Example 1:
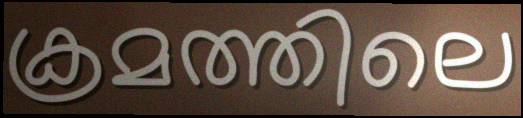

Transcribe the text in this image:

ക്രമത്തിലെ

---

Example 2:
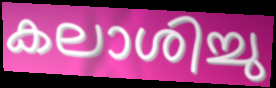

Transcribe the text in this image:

കലാശിച്ചു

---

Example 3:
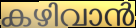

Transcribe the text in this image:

കഴിവാൻ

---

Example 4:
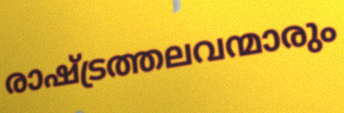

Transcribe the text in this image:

രാഷ്ട്രത്തലവന്മാരും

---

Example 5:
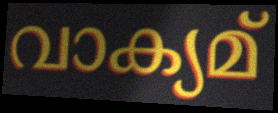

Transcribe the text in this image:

വാക്യമ്